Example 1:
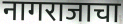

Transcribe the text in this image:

नागराजाचा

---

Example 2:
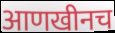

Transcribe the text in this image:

आणखीनच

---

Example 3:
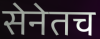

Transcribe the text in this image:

सेनेतच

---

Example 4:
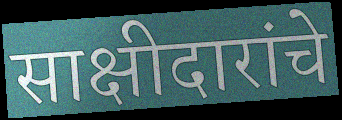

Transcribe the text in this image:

साक्षीदारांचे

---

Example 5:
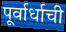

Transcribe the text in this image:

पूर्वार्धाची